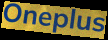
Oneplus